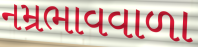
નમ્રભાવવાળા